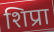
शिप्रा